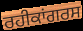
ਰਹੀਕਾਂਗਰਸ